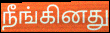
நீங்கினது